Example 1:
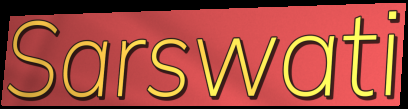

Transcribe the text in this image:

Sarswati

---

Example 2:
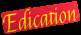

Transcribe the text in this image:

Edication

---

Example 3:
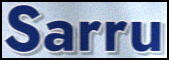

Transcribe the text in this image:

Sarru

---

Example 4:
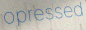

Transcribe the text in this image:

opressed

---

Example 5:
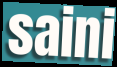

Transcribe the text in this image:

saini